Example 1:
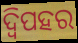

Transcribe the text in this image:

ଦ୍ୱିପହର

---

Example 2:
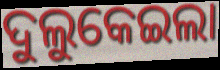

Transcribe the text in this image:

ଦୁଲୁକେଇଲା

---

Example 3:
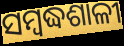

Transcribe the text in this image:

ସମ୍ବଦ୍ଧଶାଳୀ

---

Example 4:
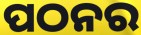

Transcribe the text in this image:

ପଠନର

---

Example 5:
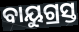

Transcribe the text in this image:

ବାୟୁଗ୍ରସ୍ତ